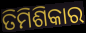
ତିମିଶିକାର